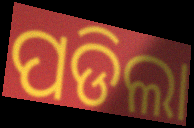
ପଡିଲା